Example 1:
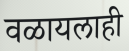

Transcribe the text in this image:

वळायलाही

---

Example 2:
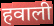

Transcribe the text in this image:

हवाली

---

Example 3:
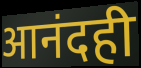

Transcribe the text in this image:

आनंदही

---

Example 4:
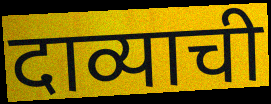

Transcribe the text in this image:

दाव्याची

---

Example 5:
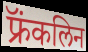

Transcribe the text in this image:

फ्रॅंकलिन